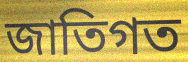
জাতিগত